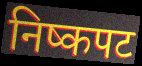
निष्कपट